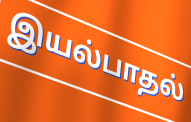
இயல்பாதல்